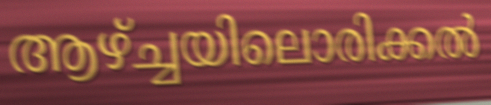
ആഴ്ച്ചയിലൊരിക്കൽ